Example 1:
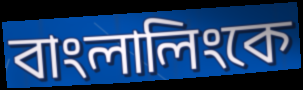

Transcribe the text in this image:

বাংলালিংকে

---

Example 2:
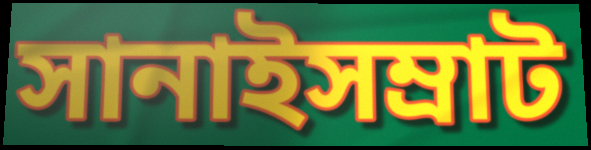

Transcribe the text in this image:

সানাইসম্রাট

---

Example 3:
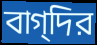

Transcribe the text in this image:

বাগ্‌দির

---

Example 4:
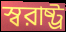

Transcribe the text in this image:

স্বরাষ্ট্র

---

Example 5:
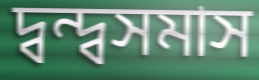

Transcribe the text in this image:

দ্বন্দ্বসমাস